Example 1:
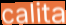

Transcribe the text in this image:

calita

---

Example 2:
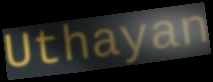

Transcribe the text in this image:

Uthayan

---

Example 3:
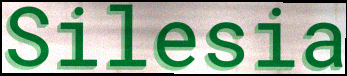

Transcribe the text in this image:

Silesia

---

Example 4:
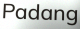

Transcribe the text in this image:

Padang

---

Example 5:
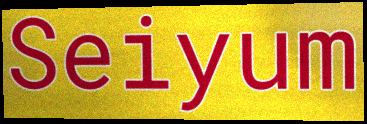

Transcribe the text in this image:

Seiyum